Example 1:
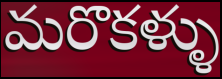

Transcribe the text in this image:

మరొకళ్ళు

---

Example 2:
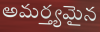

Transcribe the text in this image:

అమర్త్యమైన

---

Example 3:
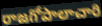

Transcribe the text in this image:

రాజగోపాలాచారి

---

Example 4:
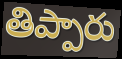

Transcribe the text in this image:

తిప్పారు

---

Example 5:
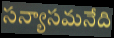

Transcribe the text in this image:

సన్యాసమనేది